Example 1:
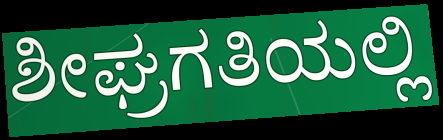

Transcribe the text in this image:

ಶೀಘ್ರಗತಿಯಲ್ಲಿ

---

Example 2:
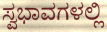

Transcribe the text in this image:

ಸ್ವಭಾವಗಳಲ್ಲಿ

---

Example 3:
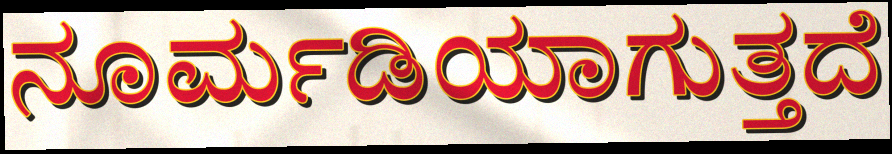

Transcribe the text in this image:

ನೂರ್ಮಡಿಯಾಗುತ್ತದೆ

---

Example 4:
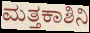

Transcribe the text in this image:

ಮತ್ತಕಾಶಿನಿ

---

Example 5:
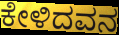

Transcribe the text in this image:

ಕೇಳಿದವನ